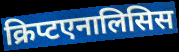
क्रिप्टएनालिसिस